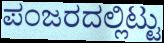
ಪಂಜರದಲ್ಲಿಟ್ಟು